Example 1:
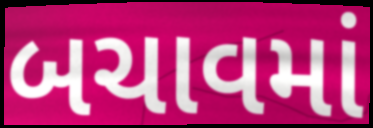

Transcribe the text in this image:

બચાવમાં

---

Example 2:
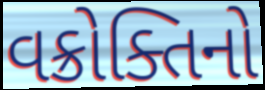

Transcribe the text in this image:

વક્રોક્તિનો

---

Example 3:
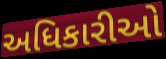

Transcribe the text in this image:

અધિકારીઓ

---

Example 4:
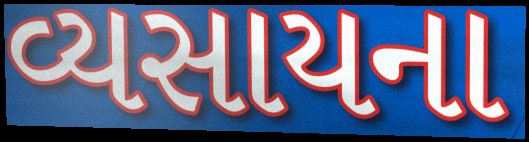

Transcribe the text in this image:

વ્યસાયના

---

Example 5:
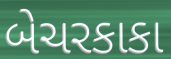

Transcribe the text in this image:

બેચરકાકા